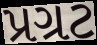
પ્રગ્રટ